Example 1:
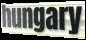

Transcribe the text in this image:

hungary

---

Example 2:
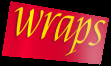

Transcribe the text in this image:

wraps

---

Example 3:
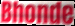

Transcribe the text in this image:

Bhonde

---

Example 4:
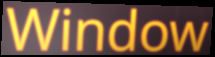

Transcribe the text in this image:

Window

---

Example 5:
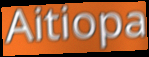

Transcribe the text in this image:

Aitiopa